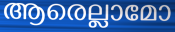
ആരെല്ലാമോ